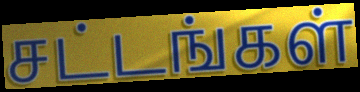
சட்டங்கள்